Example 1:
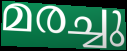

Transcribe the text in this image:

മരച്ചു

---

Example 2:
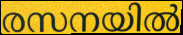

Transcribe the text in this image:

രസനയിൽ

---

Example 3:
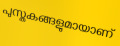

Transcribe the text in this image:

പുസ്തകങ്ങളുമായാണ്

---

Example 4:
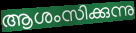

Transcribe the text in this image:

ആശംസിക്കുന്നു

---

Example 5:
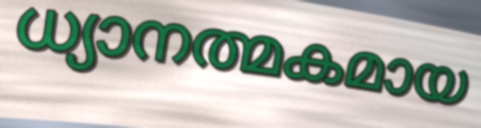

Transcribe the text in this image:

ധ്യാനത്മകമായ